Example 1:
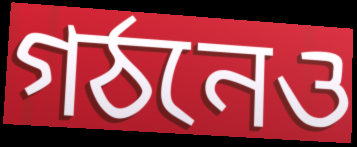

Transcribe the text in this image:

গঠনেও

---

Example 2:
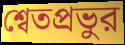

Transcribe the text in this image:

শ্বেতপ্রভুর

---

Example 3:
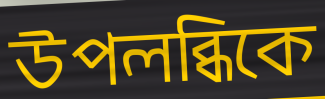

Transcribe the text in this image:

উপলব্ধিকে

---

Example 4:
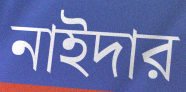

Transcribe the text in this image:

নাইদার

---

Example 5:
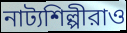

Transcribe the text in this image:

নাট্যশিল্পীরাও